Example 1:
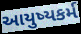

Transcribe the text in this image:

આયુષ્યકર્મ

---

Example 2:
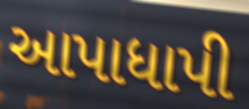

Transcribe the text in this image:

આપાધાપી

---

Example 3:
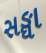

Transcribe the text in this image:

સઙ્ઘા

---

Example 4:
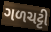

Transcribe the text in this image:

ગળચટ્ટી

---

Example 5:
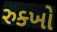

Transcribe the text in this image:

રુક્ખો